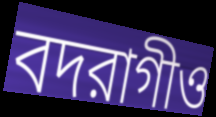
বদরাগীও